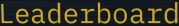
Leaderboard